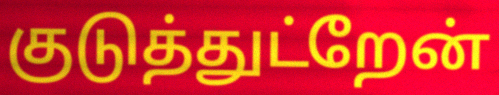
குடுத்துட்றேன்